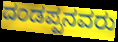
ದಂಡಪ್ಪನವರು